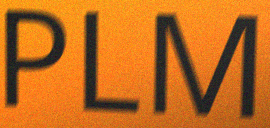
PLM